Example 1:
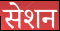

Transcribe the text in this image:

सेशन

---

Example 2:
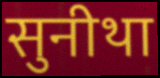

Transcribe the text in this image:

सुनीथा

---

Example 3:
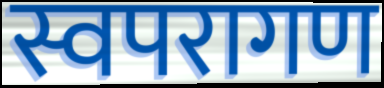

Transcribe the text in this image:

स्वपरागण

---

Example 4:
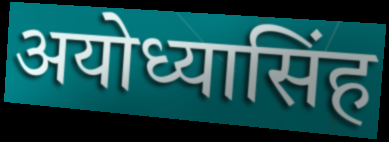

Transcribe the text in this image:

अयोध्यासिंह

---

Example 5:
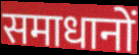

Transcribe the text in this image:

समाधानों